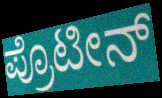
ಪ್ರೊಟೀನ್